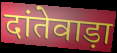
दांतेवाड़ा